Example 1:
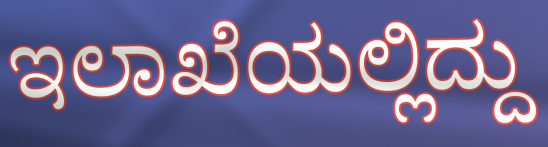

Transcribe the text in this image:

ಇಲಾಖೆಯಲ್ಲಿದ್ದು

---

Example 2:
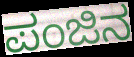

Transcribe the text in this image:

ಪಂಜಿನ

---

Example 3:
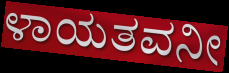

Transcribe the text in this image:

ಳಾಯತವನೀ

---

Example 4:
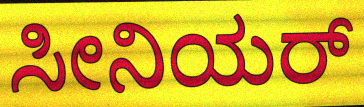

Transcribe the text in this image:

ಸೀನಿಯರ್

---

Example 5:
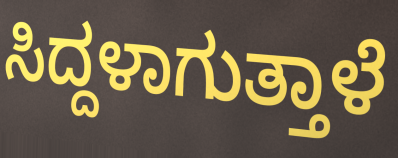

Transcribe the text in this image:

ಸಿದ್ದಳಾಗುತ್ತಾಳೆ